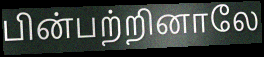
பின்பற்றினாலே